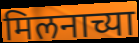
मिलनाच्या